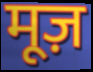
मूज़